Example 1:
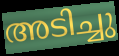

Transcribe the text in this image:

അടിച്ചു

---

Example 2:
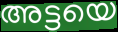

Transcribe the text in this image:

അട്ടയെ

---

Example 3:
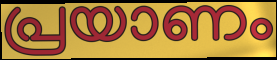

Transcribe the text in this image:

പ്രയാണം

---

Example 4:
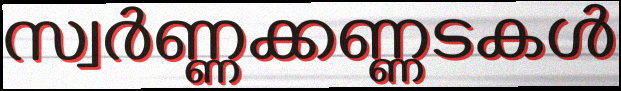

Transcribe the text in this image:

സ്വർണ്ണക്കണ്ണടകൾ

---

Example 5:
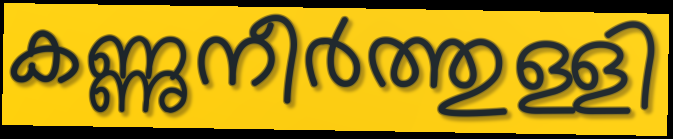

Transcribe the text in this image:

കണ്ണുനീർത്തുള്ളി